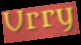
Urry